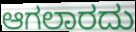
ಆಗಲಾರದು